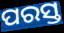
ପରସ୍ତ